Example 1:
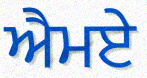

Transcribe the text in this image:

ਐਮਏ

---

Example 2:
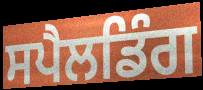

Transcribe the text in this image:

ਸਪੈਲਡਿੰਗ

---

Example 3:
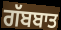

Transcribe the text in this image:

ਗੱਬਬਾਤ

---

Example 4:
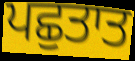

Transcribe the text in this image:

ਪਛੁਤਾਤ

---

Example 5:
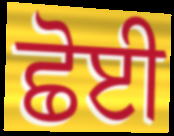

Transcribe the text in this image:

ਛੋਈ